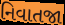
નિવાતજા